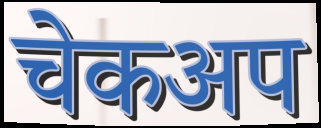
चेकअप